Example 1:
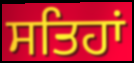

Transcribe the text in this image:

ਸਤਿਹਾਂ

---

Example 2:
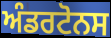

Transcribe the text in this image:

ਅੰਡਰਟੋਨਸ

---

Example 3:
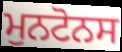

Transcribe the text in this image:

ਮੁਨਟੋਨਸ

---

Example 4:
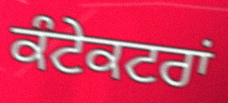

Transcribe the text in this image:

ਕੰਟੇਕਟਰਾਂ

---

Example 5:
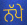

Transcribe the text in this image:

ਨੱਪੇ